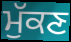
ਮੁੱਕਣ